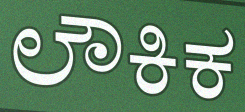
ಲೌಕಿಕ